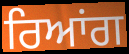
ਰਿਆਂਗ